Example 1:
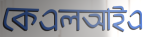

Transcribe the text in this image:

কেএলআইএ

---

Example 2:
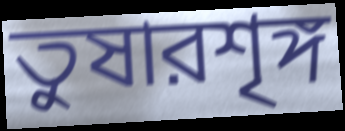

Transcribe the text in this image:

তুষারশৃঙ্গ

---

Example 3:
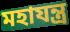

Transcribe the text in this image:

মহাযন্ত্র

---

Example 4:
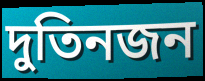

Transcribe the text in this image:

দুতিনজন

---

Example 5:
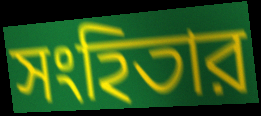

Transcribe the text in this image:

সংহিতার